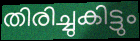
തിരിച്ചുകിട്ടും